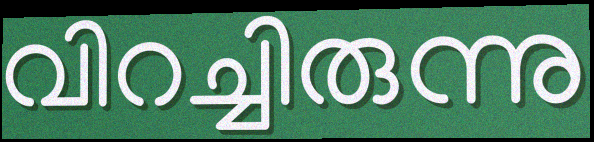
വിറച്ചിരുന്നു